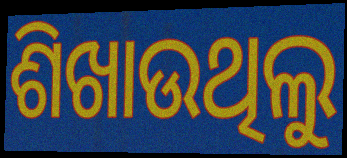
ଶିଖାଉଥିଲୁ